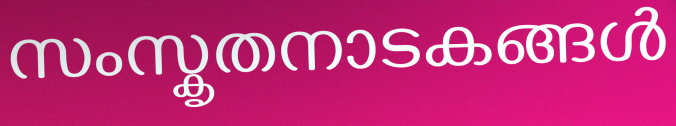
സംസ്കൃതനാടകങ്ങൾ